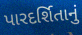
પારદર્શિતાનું